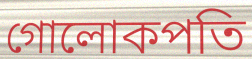
গোলোকপতি